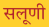
सलूणी